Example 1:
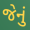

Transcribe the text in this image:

જેનું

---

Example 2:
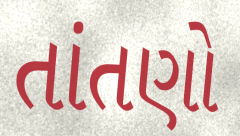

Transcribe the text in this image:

તાંતણો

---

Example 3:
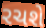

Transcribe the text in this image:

રચશે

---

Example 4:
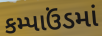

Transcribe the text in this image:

કમ્પાઉંડમાં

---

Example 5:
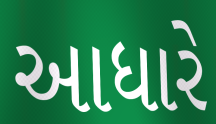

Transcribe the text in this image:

આધારે